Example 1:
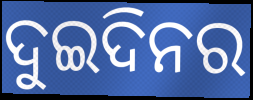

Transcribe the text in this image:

ଦୁଇଦିନର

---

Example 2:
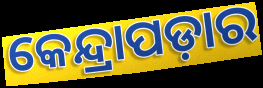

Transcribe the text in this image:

କେନ୍ଦ୍ରାପଡ଼ାର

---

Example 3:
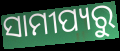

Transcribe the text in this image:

ସାମୀପ୍ୟରୁ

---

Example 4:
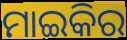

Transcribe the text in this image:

ମାଇକିର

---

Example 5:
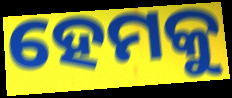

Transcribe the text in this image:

ହେମକୁ